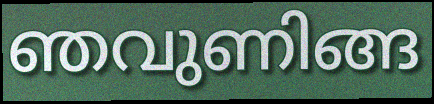
ഞവുണിങ്ങ